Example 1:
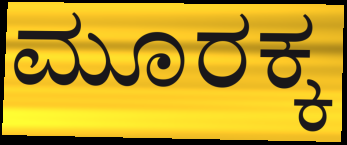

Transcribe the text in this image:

ಮೂರಕ್ಕ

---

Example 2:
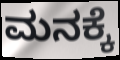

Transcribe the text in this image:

ಮನಕ್ಕೆ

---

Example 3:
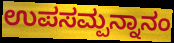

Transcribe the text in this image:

ಉಪಸಮ್ಪನ್ನಾನಂ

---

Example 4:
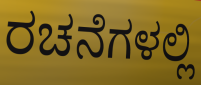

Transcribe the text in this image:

ರಚನೆಗಳಲ್ಲಿ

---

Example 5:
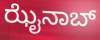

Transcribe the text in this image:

ಝೈನಾಬ್